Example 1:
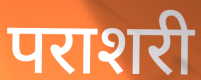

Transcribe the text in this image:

पराशरी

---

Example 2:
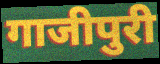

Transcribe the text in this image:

गाजीपुरी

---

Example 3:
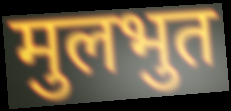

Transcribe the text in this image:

मुलभुत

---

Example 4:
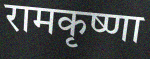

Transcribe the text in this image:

रामकृष्णा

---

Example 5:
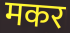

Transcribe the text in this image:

मकर